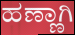
ಹಣ್ಣಾಗಿ